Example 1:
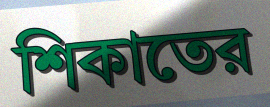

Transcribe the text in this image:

শিকাতের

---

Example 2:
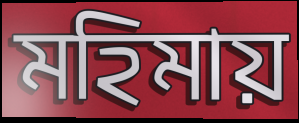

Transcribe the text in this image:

মহিমায়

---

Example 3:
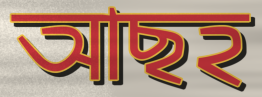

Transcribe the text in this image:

আছহ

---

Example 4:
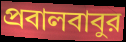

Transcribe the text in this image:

প্রবালবাবুর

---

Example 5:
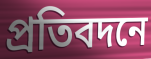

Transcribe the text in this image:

প্রতিবদনে